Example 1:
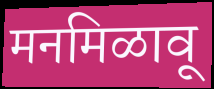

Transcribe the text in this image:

मनमिळावू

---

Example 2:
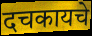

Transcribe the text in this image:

दचकायचे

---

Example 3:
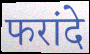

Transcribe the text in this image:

फरांदे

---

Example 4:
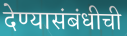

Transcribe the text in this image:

देण्यासंबंधीची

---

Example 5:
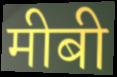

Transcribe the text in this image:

मीबी